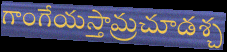
గాంగేయస్తామ్రచూడశ్చ